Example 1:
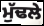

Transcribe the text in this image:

ਮੁੱਢਲੇ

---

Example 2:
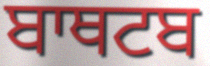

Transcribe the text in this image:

ਬਾਥਟਬ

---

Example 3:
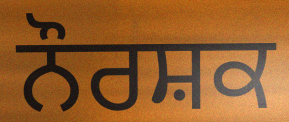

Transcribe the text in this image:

ਨੌਰਸ਼ਕ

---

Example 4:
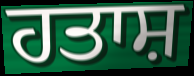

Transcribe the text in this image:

ਹਤਾਸ਼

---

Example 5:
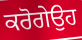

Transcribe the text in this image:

ਕਰੋਗੇਉਹ